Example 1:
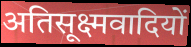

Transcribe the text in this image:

अतिसूक्ष्मवादियों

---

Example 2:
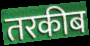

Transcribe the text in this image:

तरकीब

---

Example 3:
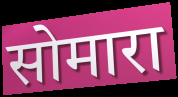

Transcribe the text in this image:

सोमारा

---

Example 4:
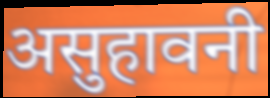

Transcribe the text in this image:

असुहावनी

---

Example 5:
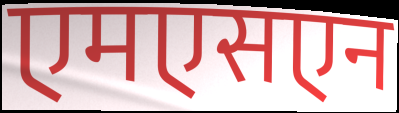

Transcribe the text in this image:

एमएसएन